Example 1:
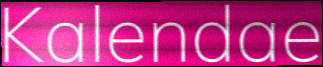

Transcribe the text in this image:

Kalendae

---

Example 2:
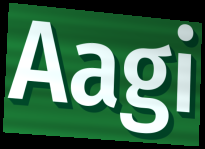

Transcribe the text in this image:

Aagi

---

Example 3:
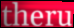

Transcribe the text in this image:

theru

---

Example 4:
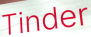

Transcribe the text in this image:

Tinder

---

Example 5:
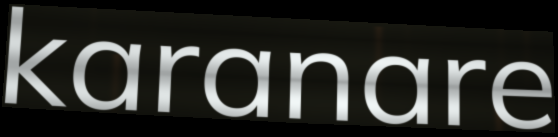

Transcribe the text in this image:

karanare